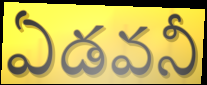
ఏడవనీ